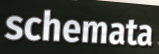
schemata